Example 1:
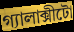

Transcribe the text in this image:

গ্যালাক্সীটো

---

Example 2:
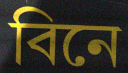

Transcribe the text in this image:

বিনে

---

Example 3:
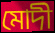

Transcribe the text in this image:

মোদী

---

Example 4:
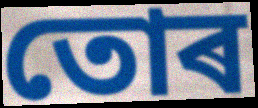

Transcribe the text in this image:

তোৰ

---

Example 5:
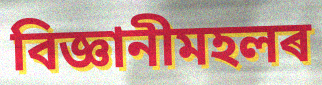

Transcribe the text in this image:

বিজ্ঞানীমহলৰ